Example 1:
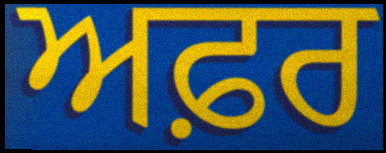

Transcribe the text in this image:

ਅਫ਼ਰ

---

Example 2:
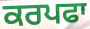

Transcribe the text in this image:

ਕਰਪਫਾ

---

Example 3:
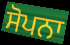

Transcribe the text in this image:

ਸੋਪਨਾ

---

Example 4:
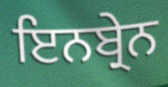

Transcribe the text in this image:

ਇਨਬ੍ਰੇਨ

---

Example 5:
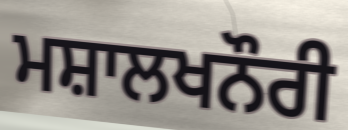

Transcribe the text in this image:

ਮਸ਼ਾਲਖਨੌਰੀ